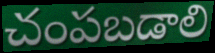
చంపబడాలి